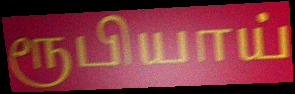
ரூபியாய்